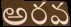
అరవ